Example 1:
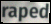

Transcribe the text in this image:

raped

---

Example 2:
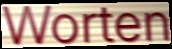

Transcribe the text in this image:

Worten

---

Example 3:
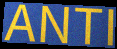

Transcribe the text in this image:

ANTI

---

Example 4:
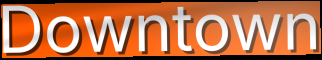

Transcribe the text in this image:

Downtown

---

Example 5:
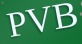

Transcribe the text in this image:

PVB